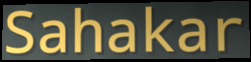
Sahakar